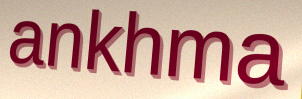
ankhma